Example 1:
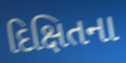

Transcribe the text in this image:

દિક્ષિતના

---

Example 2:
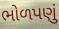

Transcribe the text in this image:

ભોળપણું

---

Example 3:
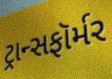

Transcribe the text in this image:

ટ્રાન્સફૉર્મર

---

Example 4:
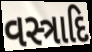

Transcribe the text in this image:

વસ્ત્રાદિ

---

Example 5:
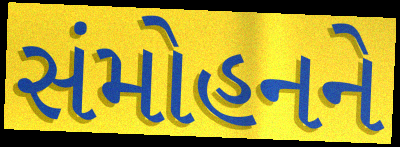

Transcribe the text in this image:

સંમોહનને